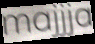
majjja